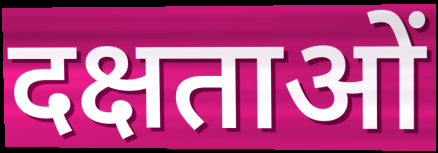
दक्षताओं